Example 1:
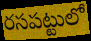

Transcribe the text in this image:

రసపట్టులో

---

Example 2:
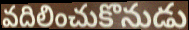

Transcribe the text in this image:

వదిలించుకొనుడు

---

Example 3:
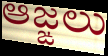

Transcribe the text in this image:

ఆజ్ఙలు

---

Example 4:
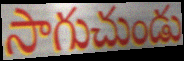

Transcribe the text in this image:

సాగుచుండు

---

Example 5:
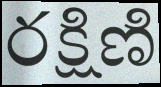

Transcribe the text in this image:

రక్షిణి